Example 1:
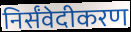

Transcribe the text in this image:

निर्संवेदीकरण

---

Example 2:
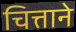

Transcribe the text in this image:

चित्ताने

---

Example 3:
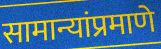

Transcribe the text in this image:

सामान्यांप्रमाणे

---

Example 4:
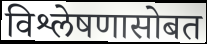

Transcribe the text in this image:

विश्लेषणासोबत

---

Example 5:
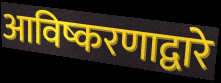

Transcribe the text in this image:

आविष्करणाद्वारे